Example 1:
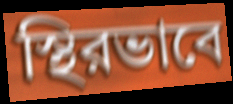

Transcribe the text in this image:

স্থিরভাবে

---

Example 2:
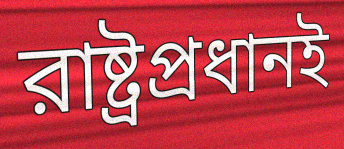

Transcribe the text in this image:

রাষ্ট্রপ্রধানই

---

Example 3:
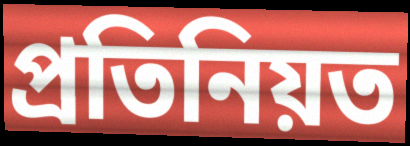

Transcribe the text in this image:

প্রতিনিয়ত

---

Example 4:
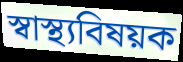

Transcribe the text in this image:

স্বাস্থ্যবিষয়ক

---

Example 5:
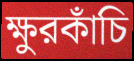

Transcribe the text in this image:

ক্ষুরকাঁচি